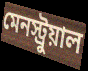
মেনস্ট্রুয়াল